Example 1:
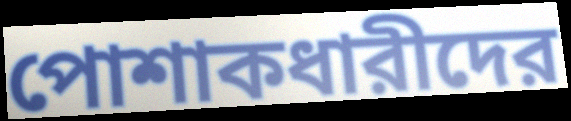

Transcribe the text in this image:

পোশাকধারীদের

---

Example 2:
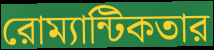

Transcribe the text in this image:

রোম্যান্টিকতার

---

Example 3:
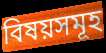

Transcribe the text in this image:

বিষয়সমূহ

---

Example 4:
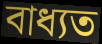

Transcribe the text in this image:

বাধ্যত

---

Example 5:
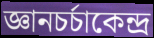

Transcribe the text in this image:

জ্ঞানচর্চাকেন্দ্র